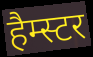
हैम्स्टर